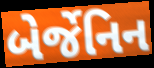
બેર્જેનિન